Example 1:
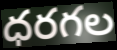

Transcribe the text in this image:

ధరగల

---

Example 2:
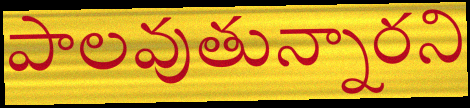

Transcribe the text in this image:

పాలవుతున్నారని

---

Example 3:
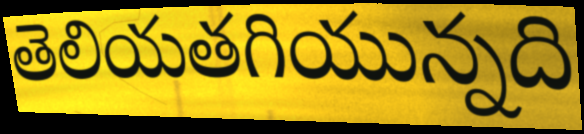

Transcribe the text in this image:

తెలియతగియున్నది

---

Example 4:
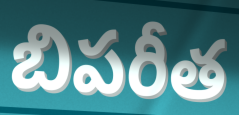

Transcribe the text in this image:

బిపరీత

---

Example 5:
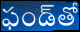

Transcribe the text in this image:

ఫండ్‌తో